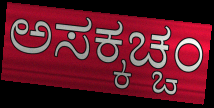
ಅಸಕ್ಕಚ್ಚಂ